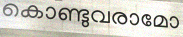
കൊണ്ടുവരാമോ